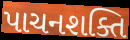
પાચનશક્તિ